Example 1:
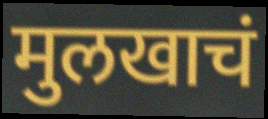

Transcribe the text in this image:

मुलखाचं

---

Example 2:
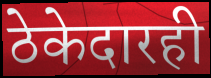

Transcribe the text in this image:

ठेकेदारही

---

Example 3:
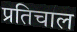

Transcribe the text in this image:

प्रतिचाल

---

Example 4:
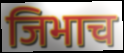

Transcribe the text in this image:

जिभाच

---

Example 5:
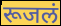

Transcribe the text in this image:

रूजलं